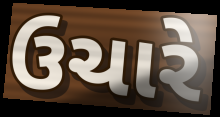
ઉચારે